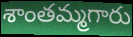
శాంతమ్మగారు